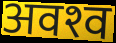
अवश्व